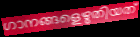
ഗാനങ്ങളെഴുതിയത്